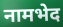
नामभेद